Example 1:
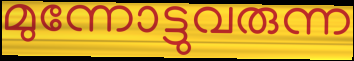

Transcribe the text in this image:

മുന്നോട്ടുവരുന്ന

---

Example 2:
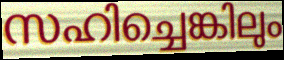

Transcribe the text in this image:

സഹിച്ചെങ്കിലും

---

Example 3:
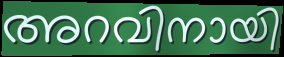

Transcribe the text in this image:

അറവിനായി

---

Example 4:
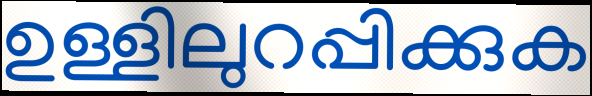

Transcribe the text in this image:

ഉള്ളിലുറപ്പിക്കുക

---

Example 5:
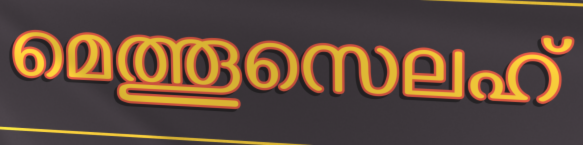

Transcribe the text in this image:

മെത്തൂസെലഹ്